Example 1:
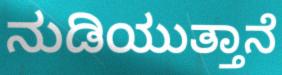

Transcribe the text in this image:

ನುಡಿಯುತ್ತಾನೆ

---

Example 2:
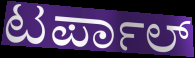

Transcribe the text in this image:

ಟರ್ಪಾಲ್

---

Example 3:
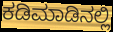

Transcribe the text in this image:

ಕಡಿಮಾಡಿನಲ್ಲಿ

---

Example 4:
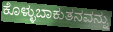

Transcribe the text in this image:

ಕೊಳ್ಳುಬಾಕುತನವನ್ನು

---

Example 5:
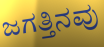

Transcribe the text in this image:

ಜಗತ್ತಿನವು